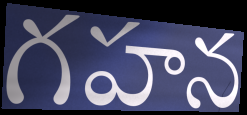
గహన